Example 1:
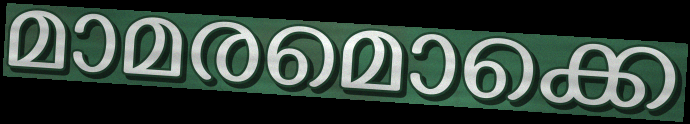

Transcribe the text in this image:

മാമരമൊക്കെ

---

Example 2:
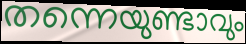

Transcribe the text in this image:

തന്നെയുണ്ടാവും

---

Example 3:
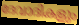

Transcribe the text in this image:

ദേവാദികളും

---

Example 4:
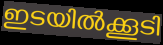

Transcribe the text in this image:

ഇടയിൽക്കൂടി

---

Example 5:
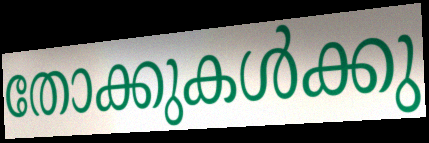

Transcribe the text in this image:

തോക്കുകൾക്കു